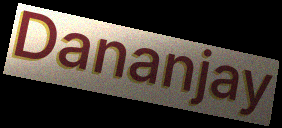
Dananjay